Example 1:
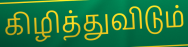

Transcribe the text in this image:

கிழித்துவிடும்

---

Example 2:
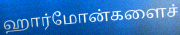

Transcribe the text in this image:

ஹார்மோன்களைச்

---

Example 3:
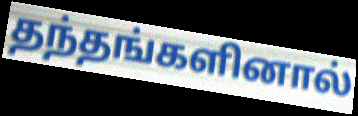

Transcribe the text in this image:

தந்தங்களினால்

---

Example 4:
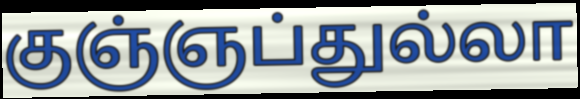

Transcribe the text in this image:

குஞ்ஞப்துல்லா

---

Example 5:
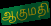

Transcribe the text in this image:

ஆகுமதி